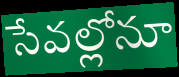
సేవల్లోనూ